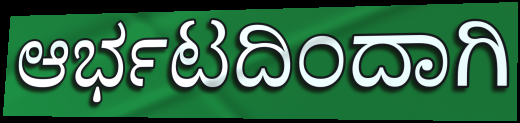
ಆರ್ಭಟದಿಂದಾಗಿ